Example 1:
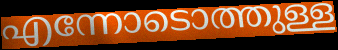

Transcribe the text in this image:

എന്നോടൊത്തുള്ള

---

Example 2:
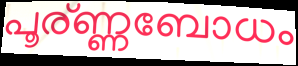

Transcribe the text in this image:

പൂര്ണ്ണബോധം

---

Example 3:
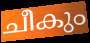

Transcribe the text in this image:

ചീകും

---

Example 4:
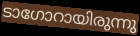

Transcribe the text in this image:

ടാഗോറായിരുന്നു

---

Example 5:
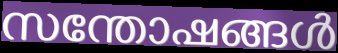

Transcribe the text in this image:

സന്തോഷങ്ങൾ